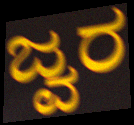
ಜ್ವರ